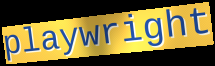
playwright